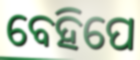
ବେହିପେ